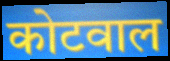
कोटवाल